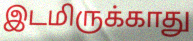
இடமிருக்காது